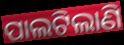
ପାଲଟିଲାଣି